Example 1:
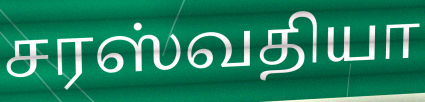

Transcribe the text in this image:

சரஸ்வதியா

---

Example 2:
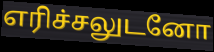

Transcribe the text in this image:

எரிச்சலுடனோ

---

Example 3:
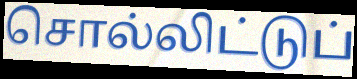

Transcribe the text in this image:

சொல்லிட்டுப்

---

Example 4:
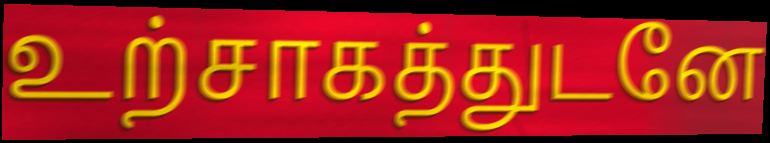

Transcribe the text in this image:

உற்சாகத்துடனே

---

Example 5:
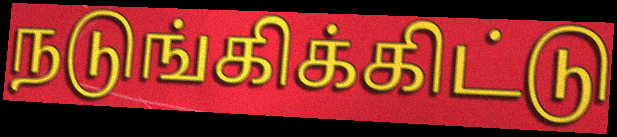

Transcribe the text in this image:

நடுங்கிக்கிட்டு